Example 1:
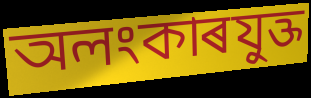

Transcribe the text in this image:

অলংকাৰযুক্ত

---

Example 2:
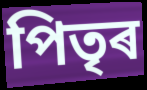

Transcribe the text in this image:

পিতৃৰ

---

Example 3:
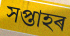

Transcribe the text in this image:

সপ্তাহৰ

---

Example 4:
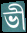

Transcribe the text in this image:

ভী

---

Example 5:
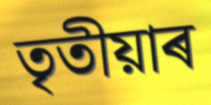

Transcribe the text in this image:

তৃতীয়াৰ